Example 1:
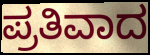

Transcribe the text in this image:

ಪ್ರತಿವಾದ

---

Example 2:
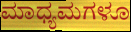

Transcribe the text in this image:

ಮಾಧ್ಯಮಗಳೂ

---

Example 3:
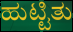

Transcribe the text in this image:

ಹುಟ್ಟಿತು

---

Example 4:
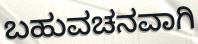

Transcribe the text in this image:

ಬಹುವಚನವಾಗಿ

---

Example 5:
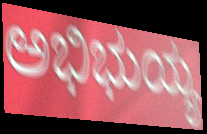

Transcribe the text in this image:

ಅಭಿಭುಯ್ಯ